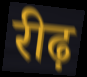
रीढ़